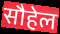
सौहेल